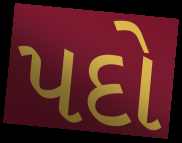
પદો